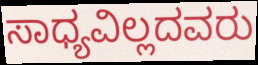
ಸಾಧ್ಯವಿಲ್ಲದವರು